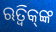
ଋତ୍ୱିକ୍‌ଙ୍କ